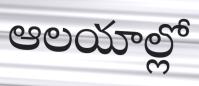
ఆలయాల్లో